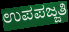
ಉಪಪಜ್ಜತಿ